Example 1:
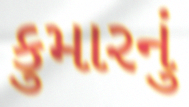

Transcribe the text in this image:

કુમારનું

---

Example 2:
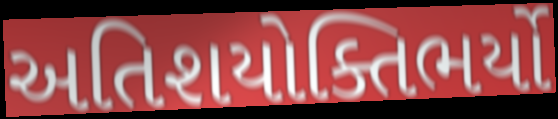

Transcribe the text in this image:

અતિશયોક્તિભર્યો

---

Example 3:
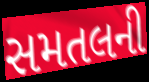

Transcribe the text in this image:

સમતલની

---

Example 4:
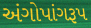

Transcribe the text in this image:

અંગોપાંગરૂપ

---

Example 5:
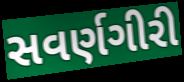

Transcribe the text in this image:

સવર્ણગીરી